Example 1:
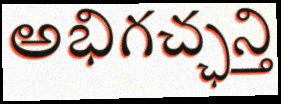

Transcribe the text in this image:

అభిగచ్ఛన్తి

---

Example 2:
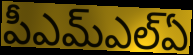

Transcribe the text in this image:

పీఎమ్ఎల్ఏ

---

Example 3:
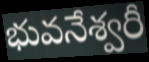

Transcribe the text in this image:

భువనేశ్వరీ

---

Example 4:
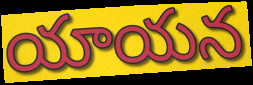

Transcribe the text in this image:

యాయన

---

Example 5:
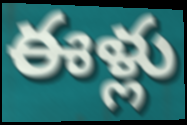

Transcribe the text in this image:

ఈళ్లు